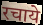
रचाये